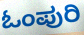
ಓಂಪುರಿ